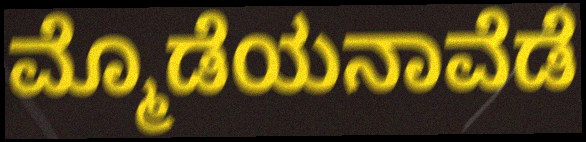
ಮ್ಮೊಡೆಯನಾವೆಡೆ